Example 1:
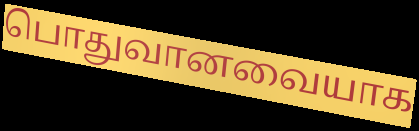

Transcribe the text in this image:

பொதுவானவையாக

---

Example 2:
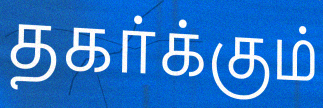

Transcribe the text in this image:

தகர்க்கும்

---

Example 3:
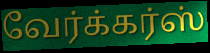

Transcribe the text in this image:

வேர்க்கர்ஸ்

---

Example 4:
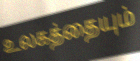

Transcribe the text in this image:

உலகத்தையும்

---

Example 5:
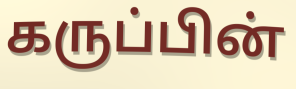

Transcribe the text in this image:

கருப்பின்